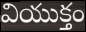
వియుక్తం